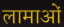
लामाओं